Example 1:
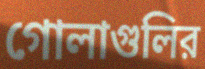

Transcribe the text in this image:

গোলাগুলির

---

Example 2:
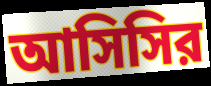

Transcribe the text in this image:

আসিসির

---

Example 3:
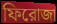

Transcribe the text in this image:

ফিরোজা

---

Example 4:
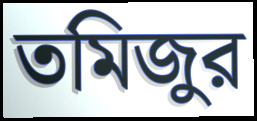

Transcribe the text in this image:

তমিজুর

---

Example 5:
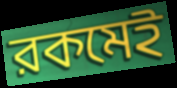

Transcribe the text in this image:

রকমেই